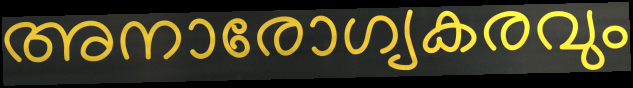
അനാരോഗ്യകരവും